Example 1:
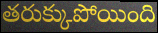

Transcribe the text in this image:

తరుక్కుపోయింది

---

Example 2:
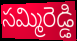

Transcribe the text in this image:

సమ్మిరెడ్డి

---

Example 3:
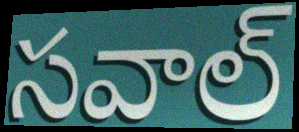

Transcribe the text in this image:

సవాల్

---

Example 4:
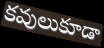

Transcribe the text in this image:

కవులుకూడా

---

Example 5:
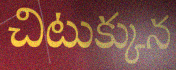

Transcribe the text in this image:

చిటుక్కున